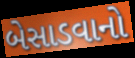
બેસાડવાનો